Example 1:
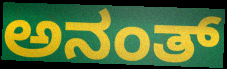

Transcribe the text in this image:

ಅನಂತ್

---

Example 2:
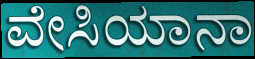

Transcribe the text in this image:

ವೇಸಿಯಾನಾ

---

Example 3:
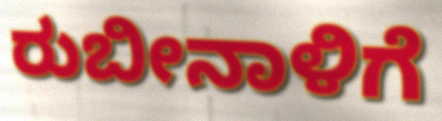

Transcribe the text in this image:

ರುಬೀನಾಳಿಗೆ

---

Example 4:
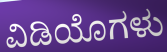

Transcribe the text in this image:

ವಿಡಿಯೊಗಳು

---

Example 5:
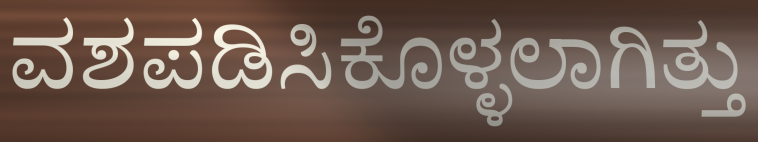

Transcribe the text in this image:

ವಶಪಡಿಸಿಕೊಳ್ಳಲಾಗಿತ್ತು